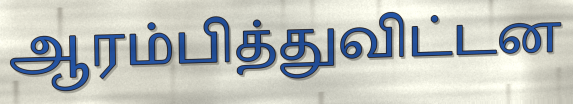
ஆரம்பித்துவிட்டன